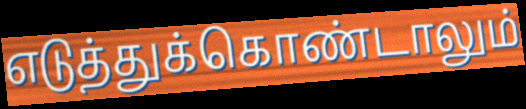
எடுத்துக்கொண்டாலும்